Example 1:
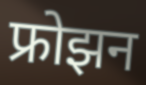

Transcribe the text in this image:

फ्रोझन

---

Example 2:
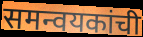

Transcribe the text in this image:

समन्वयकांची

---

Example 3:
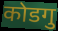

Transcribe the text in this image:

कोडगु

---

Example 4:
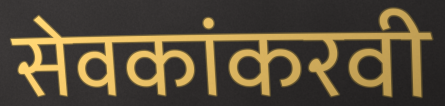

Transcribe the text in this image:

सेवकांकरवी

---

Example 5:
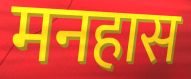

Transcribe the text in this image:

मनहास